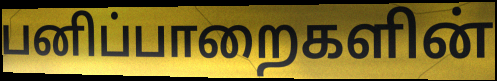
பனிப்பாறைகளின்